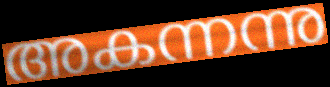
അകന്നന്നു